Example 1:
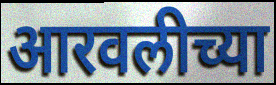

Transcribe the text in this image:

आरवलीच्या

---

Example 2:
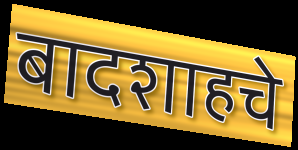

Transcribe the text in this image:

बादशाहचे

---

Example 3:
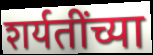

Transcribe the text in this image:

शर्यतींच्या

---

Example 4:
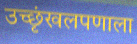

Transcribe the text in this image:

उच्छृंखलपणाला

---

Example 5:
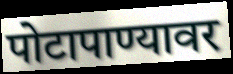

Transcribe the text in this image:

पोटापाण्यावर